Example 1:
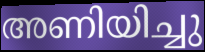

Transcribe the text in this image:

അണിയിച്ചു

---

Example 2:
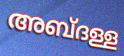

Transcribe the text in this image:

അബ്ദള്ള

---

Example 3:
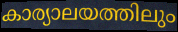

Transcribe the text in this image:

കാര്യാലയത്തിലും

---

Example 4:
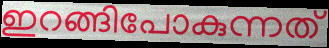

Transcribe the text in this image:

ഇറങ്ങിപോകുന്നത്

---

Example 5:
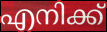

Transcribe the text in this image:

എനിക്ക്